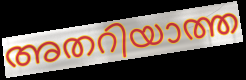
അതറിയാത്ത